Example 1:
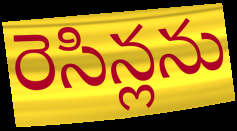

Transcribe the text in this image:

రెసిన్లను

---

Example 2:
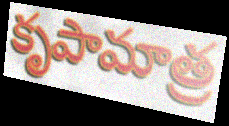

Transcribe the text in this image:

కృపామాత్ర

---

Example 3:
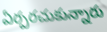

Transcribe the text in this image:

ఏర్పరచుకున్నారు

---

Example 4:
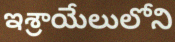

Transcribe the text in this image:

ఇశ్రాయేలులోని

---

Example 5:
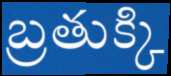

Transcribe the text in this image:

బ్రతుక్కి